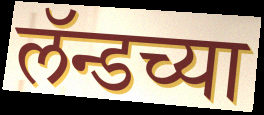
लॅन्डच्या